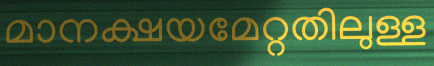
മാനക്ഷയമേറ്റതിലുള്ള